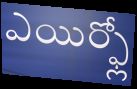
ఎయిర్ఫ్లో